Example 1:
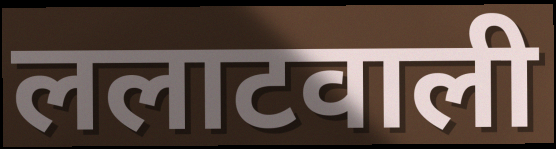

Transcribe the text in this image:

ललाटवाली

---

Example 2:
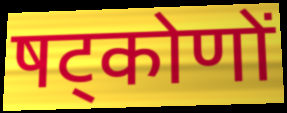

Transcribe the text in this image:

षट्कोणों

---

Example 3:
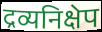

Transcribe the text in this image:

द्रव्यनिक्षेप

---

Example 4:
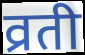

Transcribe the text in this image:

व्रती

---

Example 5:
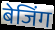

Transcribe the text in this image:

बेजिंग